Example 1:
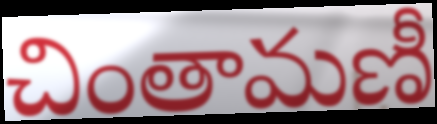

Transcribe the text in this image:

చింతామణీ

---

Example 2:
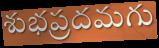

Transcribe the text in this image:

శుభప్రదమగు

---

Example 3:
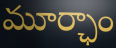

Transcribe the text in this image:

మూర్ఛాం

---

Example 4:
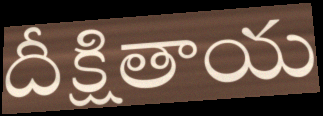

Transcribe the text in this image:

దీక్షితాయ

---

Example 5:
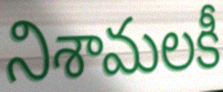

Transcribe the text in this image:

నిశామలకీ